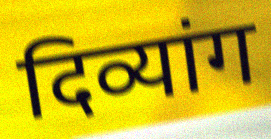
दिव्यांग